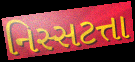
નિસ્સટત્તા